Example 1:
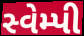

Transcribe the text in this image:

સ્વેમ્પી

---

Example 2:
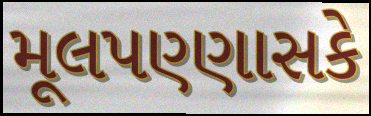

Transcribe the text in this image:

મૂલપણ્ણાસકે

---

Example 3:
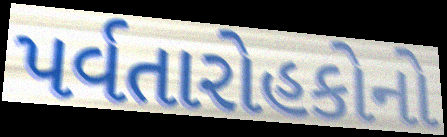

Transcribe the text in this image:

પર્વતારોહકોનો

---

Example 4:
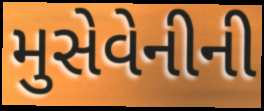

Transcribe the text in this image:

મુસેવેનીની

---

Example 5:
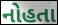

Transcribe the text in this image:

નોહતા